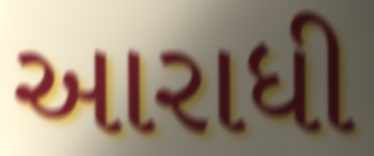
આરાધી